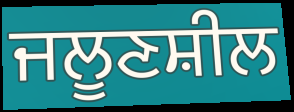
ਜਲੂਣਸ਼ੀਲ